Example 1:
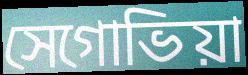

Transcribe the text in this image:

সেগোভিয়া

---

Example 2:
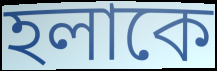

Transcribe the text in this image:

হলাকে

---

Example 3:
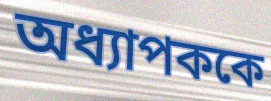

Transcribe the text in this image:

অধ্যাপককে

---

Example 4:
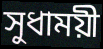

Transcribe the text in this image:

সুধাময়ী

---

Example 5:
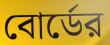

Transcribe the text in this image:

বোর্ডের